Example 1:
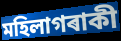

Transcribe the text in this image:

মহিলাগৰাকী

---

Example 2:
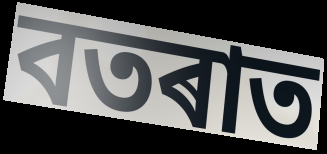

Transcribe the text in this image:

বতৰাত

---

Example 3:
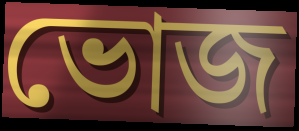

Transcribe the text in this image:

ভোজ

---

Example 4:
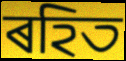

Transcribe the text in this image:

ৰহিত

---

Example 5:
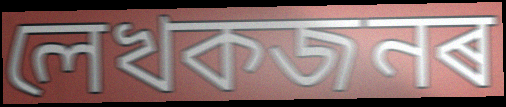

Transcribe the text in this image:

লেখকজনৰ